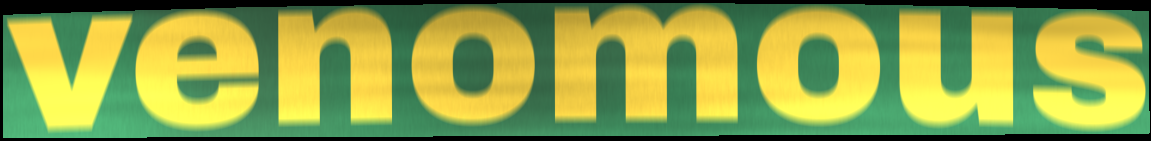
venomous